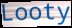
Looty